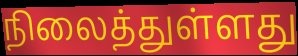
நிலைத்துள்ளது